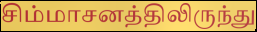
சிம்மாசனத்திலிருந்து